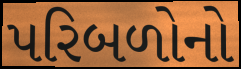
પરિબળોનો